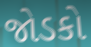
જોડકો